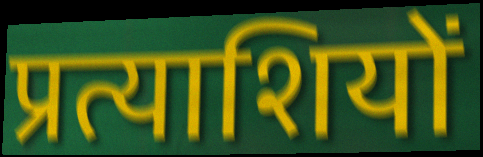
प्रत्याशियों